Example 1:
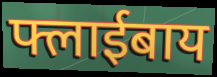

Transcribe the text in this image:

फ्लाईबाय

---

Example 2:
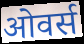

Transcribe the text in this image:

ओवर्स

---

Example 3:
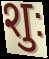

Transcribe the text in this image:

शुः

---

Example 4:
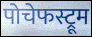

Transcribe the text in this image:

पोचेफस्ट्रूम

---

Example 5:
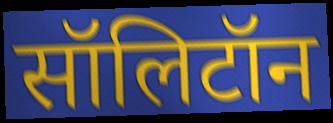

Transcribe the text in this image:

सॉलिटॉन